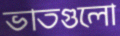
ভাতগুলো